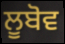
ਲੂਬੋਵ